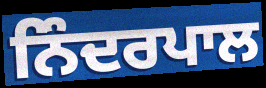
ਨਿੰਦਰਪਾਲ